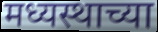
मध्यस्थाच्या